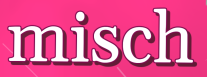
misch